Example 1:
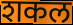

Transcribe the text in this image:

शकल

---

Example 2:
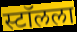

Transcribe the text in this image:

स्टॉलला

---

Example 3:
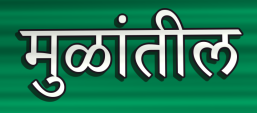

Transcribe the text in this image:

मुळांतील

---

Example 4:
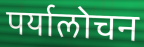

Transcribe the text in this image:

पर्यालोचन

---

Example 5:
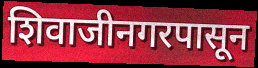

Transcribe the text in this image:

शिवाजीनगरपासून